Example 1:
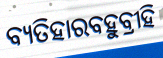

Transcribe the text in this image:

ବ୍ୟତିହାରବହୁବ୍ରୀହି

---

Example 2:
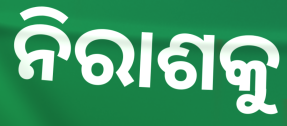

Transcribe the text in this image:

ନିରାଶକୁ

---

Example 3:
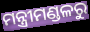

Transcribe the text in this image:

ମନ୍ତ୍ରୀମଣ୍ଡଳରୁ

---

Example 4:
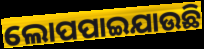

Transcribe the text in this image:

ଲୋପପାଇଯାଉଛି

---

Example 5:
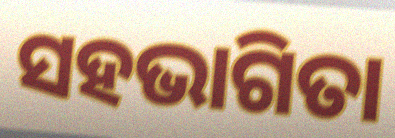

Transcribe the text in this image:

ସହଭାଗିତା